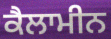
ਕੈਲਾਮੀਨ